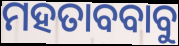
ମହତାବବାବୁ